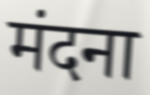
मंदना